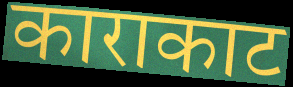
काराकाट